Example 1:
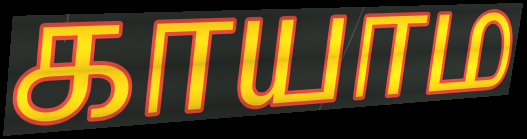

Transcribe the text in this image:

காயாம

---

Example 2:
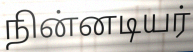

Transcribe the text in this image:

நின்னடியர்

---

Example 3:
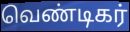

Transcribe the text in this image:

வெண்டிகர்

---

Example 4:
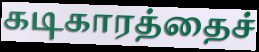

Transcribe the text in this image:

கடிகாரத்தைச்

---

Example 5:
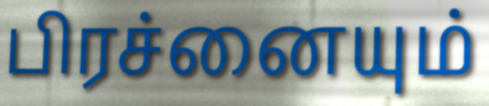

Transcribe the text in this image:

பிரச்னையும்